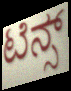
ಟೆನ್ಸ್